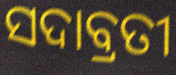
ସଦାବ୍ରତୀ